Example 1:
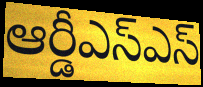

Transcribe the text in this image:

ఆర్డీఎస్ఎస్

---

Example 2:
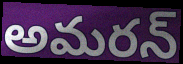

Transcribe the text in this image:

అమరన్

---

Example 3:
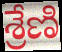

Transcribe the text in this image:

శ్రేణి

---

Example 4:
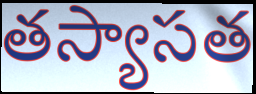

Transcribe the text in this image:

తస్యాసత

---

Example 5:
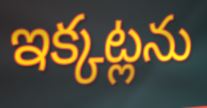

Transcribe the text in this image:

ఇక్కట్లను